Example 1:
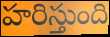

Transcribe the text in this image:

హరిస్తుంది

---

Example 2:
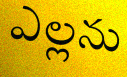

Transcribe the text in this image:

ఎల్లను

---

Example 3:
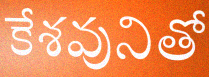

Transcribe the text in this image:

కేశవునితో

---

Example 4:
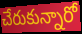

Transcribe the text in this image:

చేరుకున్నారో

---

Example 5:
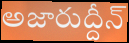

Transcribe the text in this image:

అజారుద్దీన్